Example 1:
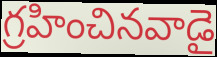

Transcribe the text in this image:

గ్రహించినవాడై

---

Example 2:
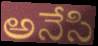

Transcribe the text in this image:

అనేసి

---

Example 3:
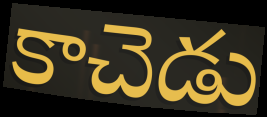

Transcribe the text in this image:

కాచెడు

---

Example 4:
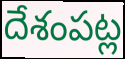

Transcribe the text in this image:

దేశంపట్ల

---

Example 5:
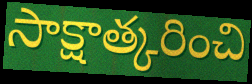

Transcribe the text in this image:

సాక్షాత్కరించి